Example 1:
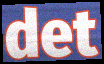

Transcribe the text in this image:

det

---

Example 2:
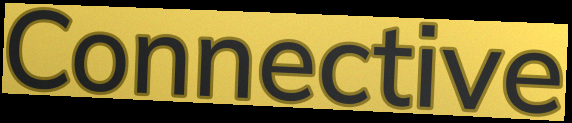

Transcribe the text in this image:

Connective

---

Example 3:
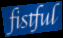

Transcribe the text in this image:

fistful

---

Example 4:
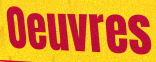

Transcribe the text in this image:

Oeuvres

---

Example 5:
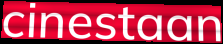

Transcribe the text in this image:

cinestaan